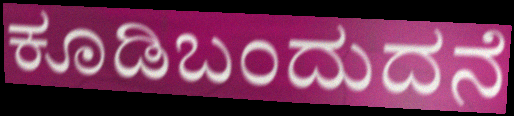
ಕೂಡಿಬಂದುದನೆ